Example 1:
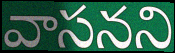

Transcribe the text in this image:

వాసనని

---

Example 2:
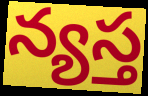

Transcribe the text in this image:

న్యస్త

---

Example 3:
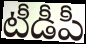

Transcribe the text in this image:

టీడీపీ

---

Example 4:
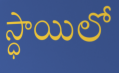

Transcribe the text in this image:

స్ధాయిలో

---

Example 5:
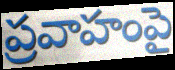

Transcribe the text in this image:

ప్రవాహంపై